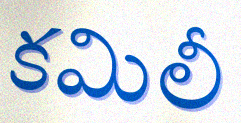
కమిలీ